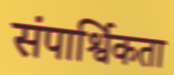
संपार्श्विकता